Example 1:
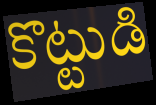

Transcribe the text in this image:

కొట్టుడి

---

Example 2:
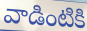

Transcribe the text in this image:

వాడింటికి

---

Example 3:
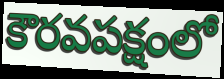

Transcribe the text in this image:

కౌరవపక్షంలో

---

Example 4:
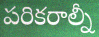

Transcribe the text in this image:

పరికరాల్నీ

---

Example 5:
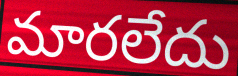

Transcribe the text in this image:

మారలేదు